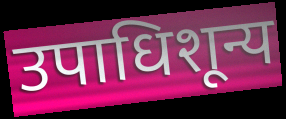
उपाधिशून्य